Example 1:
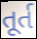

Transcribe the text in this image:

તૂર્ત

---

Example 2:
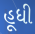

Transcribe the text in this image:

હૂધી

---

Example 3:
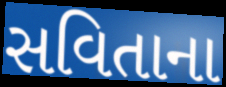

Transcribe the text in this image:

સવિતાના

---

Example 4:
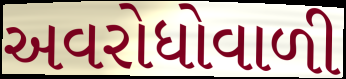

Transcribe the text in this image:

અવરોધોવાળી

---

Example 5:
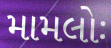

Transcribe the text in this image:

મામલોઃ